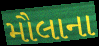
મૌલાના